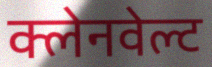
क्लेनवेल्ट